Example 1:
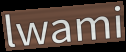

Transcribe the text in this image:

lwami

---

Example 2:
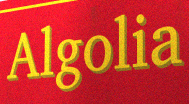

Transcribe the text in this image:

Algolia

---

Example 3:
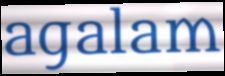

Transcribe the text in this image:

agalam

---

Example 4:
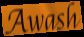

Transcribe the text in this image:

Awash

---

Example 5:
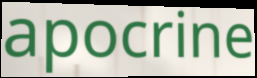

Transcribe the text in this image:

apocrine